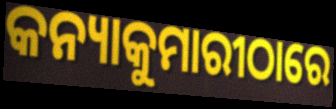
କନ୍ୟାକୁମାରୀଠାରେ